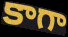
కాగా